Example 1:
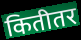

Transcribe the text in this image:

कितीतर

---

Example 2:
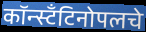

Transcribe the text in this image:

कॉन्स्टँटिनोपलचे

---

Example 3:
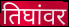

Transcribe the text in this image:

तिघांवर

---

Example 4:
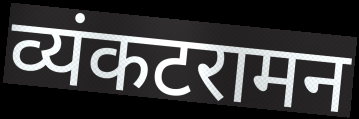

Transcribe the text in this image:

व्यंकटरामन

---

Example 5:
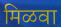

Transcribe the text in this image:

मिळवा